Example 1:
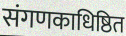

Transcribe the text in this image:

संगणकाधिष्ठित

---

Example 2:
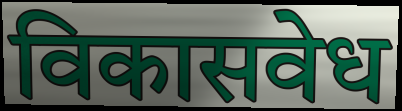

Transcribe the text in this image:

विकासवेध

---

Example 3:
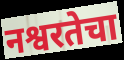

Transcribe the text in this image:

नश्वरतेचा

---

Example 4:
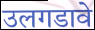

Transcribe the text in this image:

उलगडावे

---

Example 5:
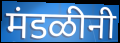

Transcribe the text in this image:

मंडळीनी